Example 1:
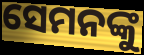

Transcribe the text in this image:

ସେମନଙ୍କୁ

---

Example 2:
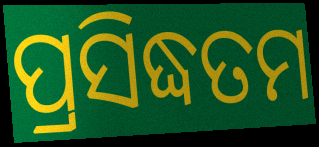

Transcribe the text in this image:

ପ୍ରସିଦ୍ଧତମ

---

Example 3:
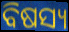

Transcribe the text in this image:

ବିଷସ୍ୟ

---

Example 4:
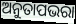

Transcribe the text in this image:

ଅନୁତାପଭରା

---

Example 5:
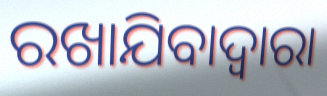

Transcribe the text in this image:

ରଖାଯିବାଦ୍ଵାରା